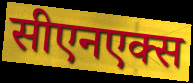
सीएनएक्स